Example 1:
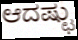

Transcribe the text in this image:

ಆದಷ್ಟು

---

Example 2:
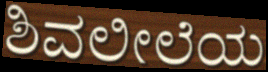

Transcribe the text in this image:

ಶಿವಲೀಲೆಯ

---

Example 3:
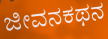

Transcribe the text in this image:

ಜೀವನಕಥನ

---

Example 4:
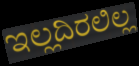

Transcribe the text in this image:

ಇಲ್ಲದಿರಲಿಲ್ಲ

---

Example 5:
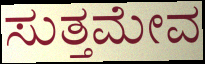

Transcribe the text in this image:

ಸುತ್ತಮೇವ